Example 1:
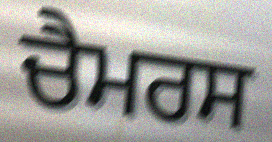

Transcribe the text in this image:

ਚੈਮਰਸ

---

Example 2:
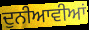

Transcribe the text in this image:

ਦੁਨੀਆਵੀਆਂ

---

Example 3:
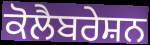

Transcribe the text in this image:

ਕੋਲੈਬਰੇਸ਼ਨ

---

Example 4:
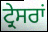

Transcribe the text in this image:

ਟ੍ਰੇਸਰਾਂ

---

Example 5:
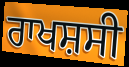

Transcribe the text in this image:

ਰਾਖਸ਼ਸੀ